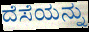
ದೆಸೆಯನ್ನು